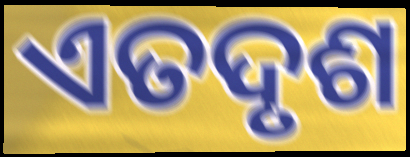
ଏତଦୃଶ